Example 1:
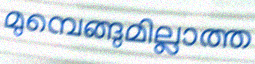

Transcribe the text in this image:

മുമ്പെങ്ങുമില്ലാത്ത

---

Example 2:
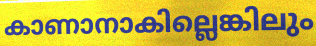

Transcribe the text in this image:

കാണാനാകില്ലെങ്കിലും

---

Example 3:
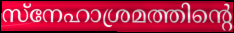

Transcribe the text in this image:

സ്നേഹാശ്രമത്തിന്റെ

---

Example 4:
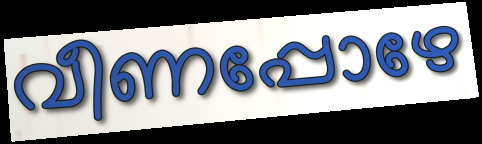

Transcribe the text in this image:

വീണപ്പോഴേ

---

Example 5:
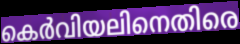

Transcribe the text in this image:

കെർവിയലിനെതിരെ